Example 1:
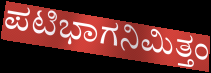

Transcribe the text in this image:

ಪಟಿಭಾಗನಿಮಿತ್ತಂ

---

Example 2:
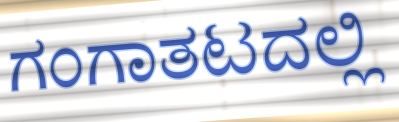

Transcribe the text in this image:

ಗಂಗಾತಟದಲ್ಲಿ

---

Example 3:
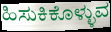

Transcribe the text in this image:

ಹಿಸುಕಿಕೊಳ್ಳುವ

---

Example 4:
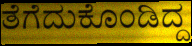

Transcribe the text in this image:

ತೆಗೆದುಕೊಂಡಿದ್ದ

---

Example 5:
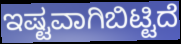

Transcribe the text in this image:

ಇಷ್ಟವಾಗಿಬಿಟ್ಟಿದೆ